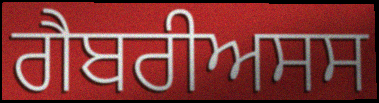
ਗੈਬਰੀਅਸਸ